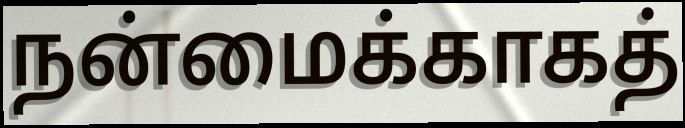
நன்மைக்காகத்